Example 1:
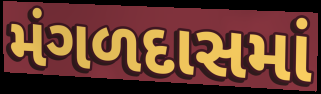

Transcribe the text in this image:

મંગળદાસમાં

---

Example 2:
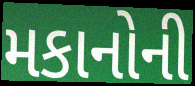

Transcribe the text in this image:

મકાનોની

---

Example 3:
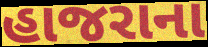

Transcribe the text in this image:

હાજરાના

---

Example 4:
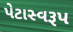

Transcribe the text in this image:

પેટાસ્વરૂપ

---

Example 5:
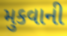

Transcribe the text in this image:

મુકવાની